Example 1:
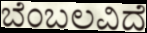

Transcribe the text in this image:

ಬೆಂಬಲವಿದೆ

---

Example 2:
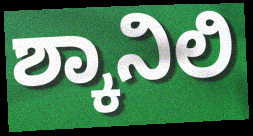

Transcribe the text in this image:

ಶ್ಕಾನಿಲಿ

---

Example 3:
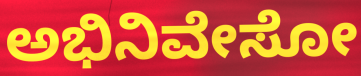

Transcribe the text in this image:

ಅಭಿನಿವೇಸೋ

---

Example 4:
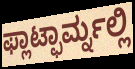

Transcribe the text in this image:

ಫ್ಲಾಟ್ಫಾರ್ಮ್ನಲ್ಲಿ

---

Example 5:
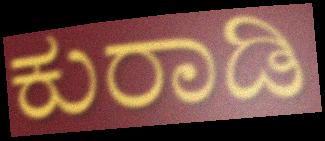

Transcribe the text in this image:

ಕುರಾಡಿ